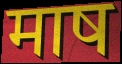
माष